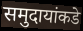
समुदायांकडे